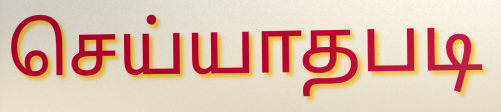
செய்யாதபடி